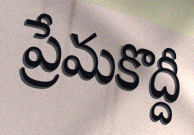
ప్రేమకొద్దీ